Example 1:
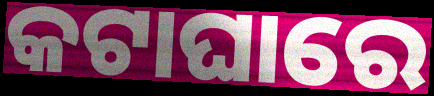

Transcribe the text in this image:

କଟାଘାରେ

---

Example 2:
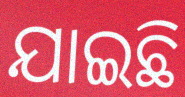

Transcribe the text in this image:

ଯାଇଛି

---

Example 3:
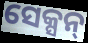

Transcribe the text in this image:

ସେକ୍ସନ୍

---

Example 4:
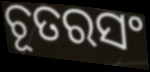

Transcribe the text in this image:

ଚୂତରସଂ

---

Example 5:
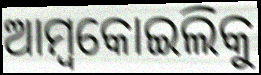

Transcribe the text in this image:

ଆମ୍ବକୋଇଲିକୁ